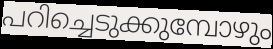
പറിച്ചെടുക്കുമ്പോഴും